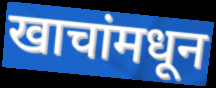
खाचांमधून